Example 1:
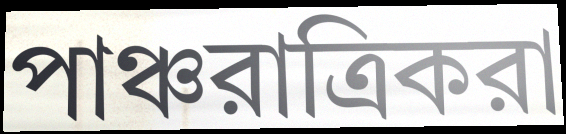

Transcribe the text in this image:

পাঞ্চরাত্রিকরা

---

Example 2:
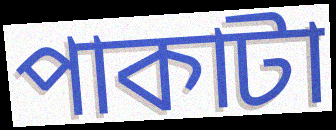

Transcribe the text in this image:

পাকাটা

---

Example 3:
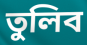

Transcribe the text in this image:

তুলিব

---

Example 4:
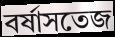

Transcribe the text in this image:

বর্ষাসতেজ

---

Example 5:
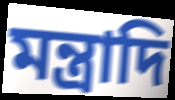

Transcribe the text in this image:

মন্ত্রাদি